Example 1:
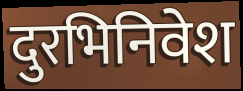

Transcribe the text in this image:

दुरभिनिवेश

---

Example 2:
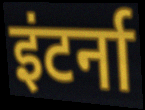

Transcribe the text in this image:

इंटर्ना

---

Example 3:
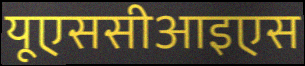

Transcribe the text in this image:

यूएससीआइएस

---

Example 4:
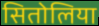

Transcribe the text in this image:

सितोलिया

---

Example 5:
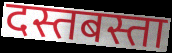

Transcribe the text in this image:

दस्तबस्ता